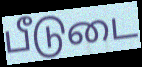
பீடுடை